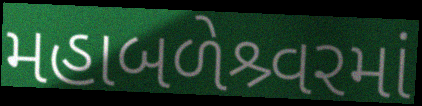
મહાબળેશ્ર્વરમાં